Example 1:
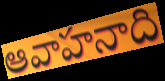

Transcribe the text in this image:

ఆవాహనాది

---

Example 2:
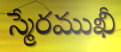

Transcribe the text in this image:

స్మేరముఖీ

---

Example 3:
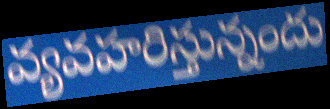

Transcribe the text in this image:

వ్యవహరిస్తున్నందు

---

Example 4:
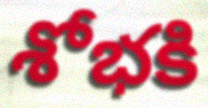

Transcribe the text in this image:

శోభకి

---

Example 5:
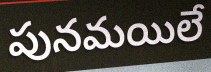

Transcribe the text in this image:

పునమయిలే